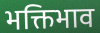
भक्तिभाव